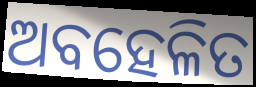
ଅବହେଳିତ